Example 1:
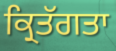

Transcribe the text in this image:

ਕ੍ਰਿਤੱਗਤਾ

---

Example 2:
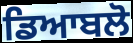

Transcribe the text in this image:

ਡਿਆਬਲੋ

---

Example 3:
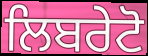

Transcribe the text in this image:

ਲਿਬਰੇਟੋ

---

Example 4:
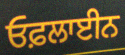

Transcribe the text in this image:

ਓਫ਼ਲਾਈਨ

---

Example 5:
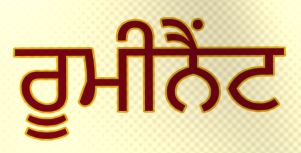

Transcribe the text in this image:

ਰੂਮੀਨੈਂਟ